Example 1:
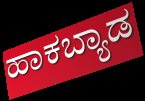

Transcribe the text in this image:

ಹಾಕಬ್ಯಾಡ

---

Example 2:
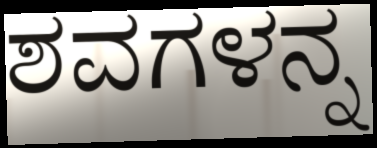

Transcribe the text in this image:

ಶವಗಳನ್ನ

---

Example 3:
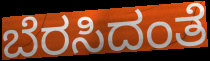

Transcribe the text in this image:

ಬೆರಸಿದಂತೆ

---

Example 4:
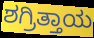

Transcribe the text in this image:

ಶಗ್ರಿತ್ತಾಯ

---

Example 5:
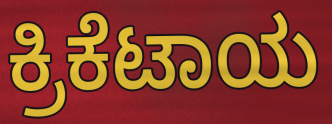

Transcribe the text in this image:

ಕ್ರಿಕೆಟಾಯ